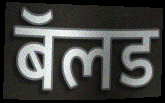
बॅलड